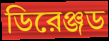
ডিরেঞ্জড